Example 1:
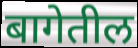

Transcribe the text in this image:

बागेतील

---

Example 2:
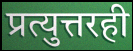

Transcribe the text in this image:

प्रत्युत्तरही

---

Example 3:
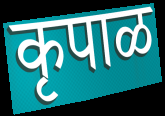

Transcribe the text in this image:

कृपाळ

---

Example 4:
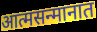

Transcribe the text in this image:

आत्मसन्मानात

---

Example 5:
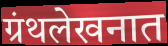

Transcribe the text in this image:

ग्रंथलेखनात